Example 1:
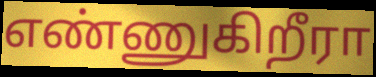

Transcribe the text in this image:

எண்ணுகிறீரா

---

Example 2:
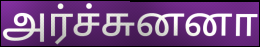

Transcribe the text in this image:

அர்ச்சுனனா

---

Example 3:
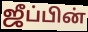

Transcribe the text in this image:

ஜீப்பின்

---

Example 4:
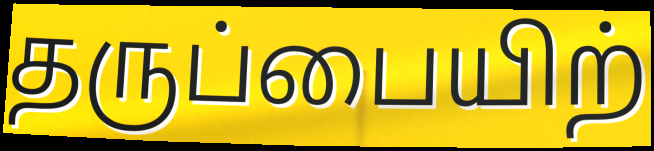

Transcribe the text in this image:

தருப்பையிற்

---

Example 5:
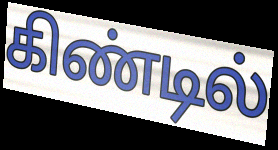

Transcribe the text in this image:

கிண்டில்